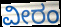
ವೀರಂ